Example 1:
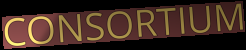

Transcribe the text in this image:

CONSORTIUM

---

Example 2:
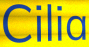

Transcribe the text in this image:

Cilia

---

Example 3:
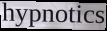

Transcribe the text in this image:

hypnotics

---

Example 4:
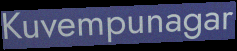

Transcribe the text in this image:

Kuvempunagar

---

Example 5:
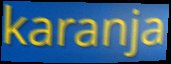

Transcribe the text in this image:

karanja